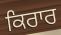
ਕਿਰਾਰ